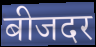
बीजदर